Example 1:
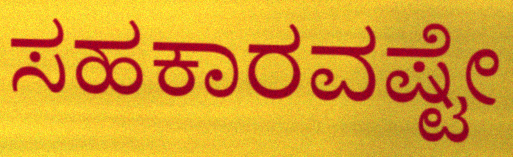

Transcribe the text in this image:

ಸಹಕಾರವಷ್ಟೇ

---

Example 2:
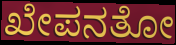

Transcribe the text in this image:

ಖೇಪನತೋ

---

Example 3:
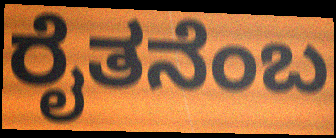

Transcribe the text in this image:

ರೈತನೆಂಬ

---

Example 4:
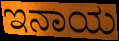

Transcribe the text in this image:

ಇನಾಯ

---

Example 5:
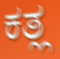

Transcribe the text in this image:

ಕತ್ಲ